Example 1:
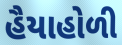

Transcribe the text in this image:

હૈયાહોળી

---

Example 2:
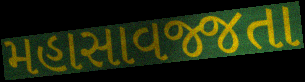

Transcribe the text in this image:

મહાસાવજ્જતા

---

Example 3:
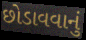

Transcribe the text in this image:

છોડાવવાનું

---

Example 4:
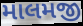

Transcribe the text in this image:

માલમજી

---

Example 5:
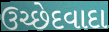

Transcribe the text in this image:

ઉચ્છેદવાદા